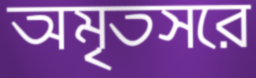
অমৃতসরে